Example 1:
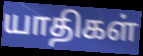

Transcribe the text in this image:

யாதிகள்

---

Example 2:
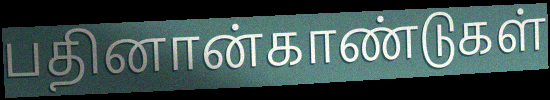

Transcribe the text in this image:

பதினான்காண்டுகள்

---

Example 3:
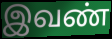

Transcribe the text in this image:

இவண்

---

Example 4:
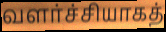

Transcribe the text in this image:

வளர்ச்சியாகத்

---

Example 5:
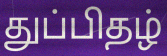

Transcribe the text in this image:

துப்பிதழ்